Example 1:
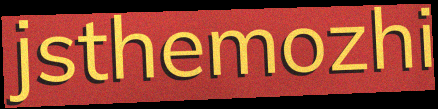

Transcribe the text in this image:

jsthemozhi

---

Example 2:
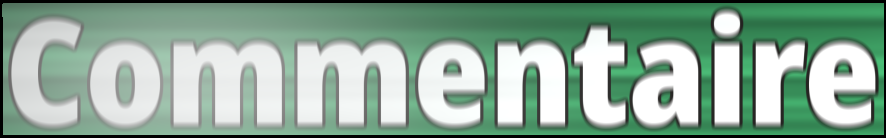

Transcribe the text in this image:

Commentaire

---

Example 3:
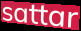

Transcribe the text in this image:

sattar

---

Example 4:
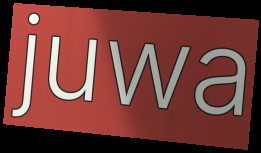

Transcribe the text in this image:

juwa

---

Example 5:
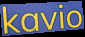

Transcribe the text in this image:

kavio